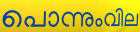
പൊന്നുംവില